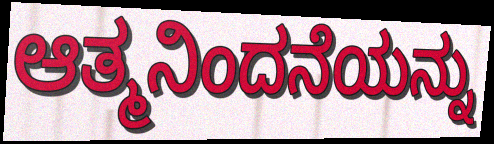
ಆತ್ಮನಿಂದನೆಯನ್ನು